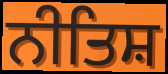
ਨੀਤਿਸ਼